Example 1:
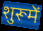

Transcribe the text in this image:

शुरूमें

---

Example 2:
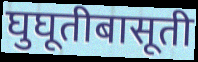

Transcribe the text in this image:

घुघूतीबासूती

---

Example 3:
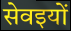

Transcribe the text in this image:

सेवइयों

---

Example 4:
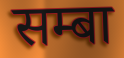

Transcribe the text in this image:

सम्बा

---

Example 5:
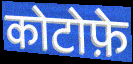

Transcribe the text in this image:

कोटोफ़े